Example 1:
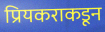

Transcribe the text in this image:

प्रियकराकडून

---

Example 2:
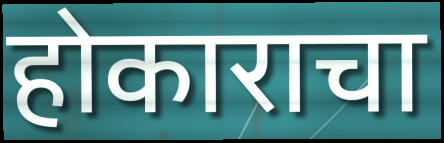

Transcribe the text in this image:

होकाराचा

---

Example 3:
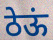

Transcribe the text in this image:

ठेऊं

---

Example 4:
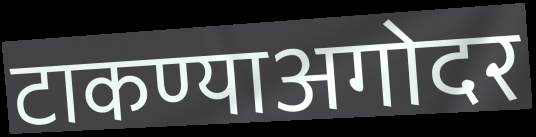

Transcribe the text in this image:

टाकण्याअगोदर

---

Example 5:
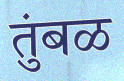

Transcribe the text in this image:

तुंबळ